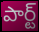
పార్ట్